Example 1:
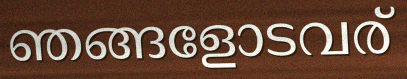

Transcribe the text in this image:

ഞങ്ങളോടവര്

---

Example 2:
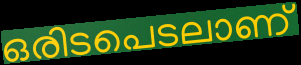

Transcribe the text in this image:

ഒരിടപെടലാണ്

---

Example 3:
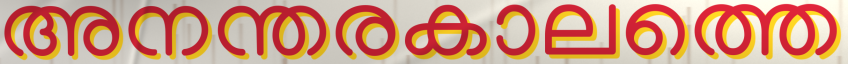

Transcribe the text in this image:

അനന്തരകാലത്തെ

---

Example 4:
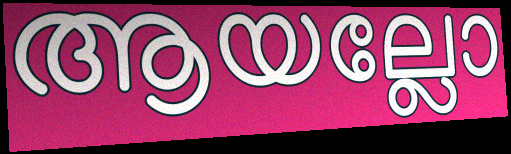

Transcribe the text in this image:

ആയല്ലോ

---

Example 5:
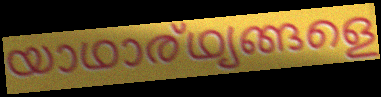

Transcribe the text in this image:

യാഥാര്ഥ്യങ്ങളെ